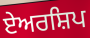
ਏਅਰਸ਼ਿਪ